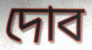
দোব